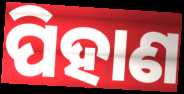
ପିହାଣ